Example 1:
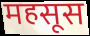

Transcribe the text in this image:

महसूस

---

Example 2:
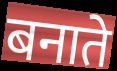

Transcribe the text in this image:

बनाते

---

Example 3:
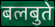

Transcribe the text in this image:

बलबुते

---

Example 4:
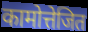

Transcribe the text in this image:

कामोत्तेजित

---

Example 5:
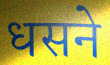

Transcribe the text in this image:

धसने